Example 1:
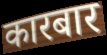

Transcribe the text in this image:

कारबार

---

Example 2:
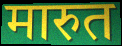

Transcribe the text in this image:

मारुत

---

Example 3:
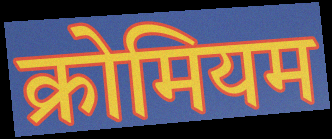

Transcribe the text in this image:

क्रोमियम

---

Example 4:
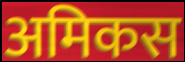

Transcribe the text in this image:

अमिकस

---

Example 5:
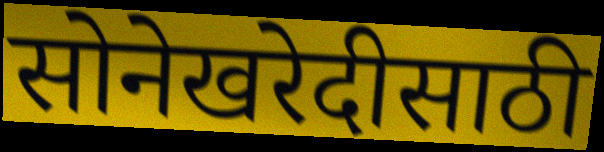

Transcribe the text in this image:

सोनेखरेदीसाठी